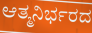
ಆತ್ಮನಿರ್ಭರದ